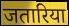
जतारिया